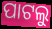
ପାଟଲୁ